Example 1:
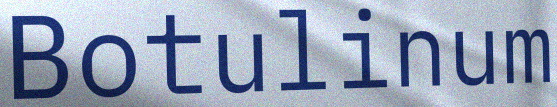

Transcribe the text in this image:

Botulinum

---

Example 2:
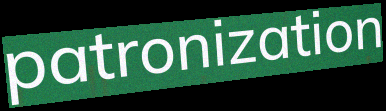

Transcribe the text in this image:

patronization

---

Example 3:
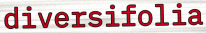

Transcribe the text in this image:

diversifolia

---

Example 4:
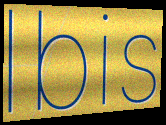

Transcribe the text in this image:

Ibis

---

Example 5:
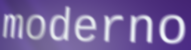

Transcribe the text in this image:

moderno